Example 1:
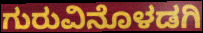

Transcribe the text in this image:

ಗುರುವಿನೊಳಡಗಿ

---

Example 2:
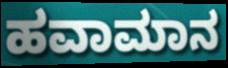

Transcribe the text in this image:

ಹವಾಮಾನ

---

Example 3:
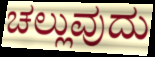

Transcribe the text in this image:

ಚಲ್ಲುವುದು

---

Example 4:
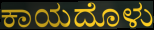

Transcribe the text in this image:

ಕಾಯದೊಳು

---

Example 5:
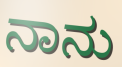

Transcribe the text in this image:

ನಾನು